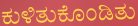
ಕುಳಿತುಕೊಂಡಿತು